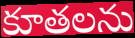
కూతలను